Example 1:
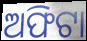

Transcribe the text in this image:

ଅଫିଟା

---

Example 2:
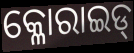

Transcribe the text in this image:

କ୍ଳୋରାଇଡ୍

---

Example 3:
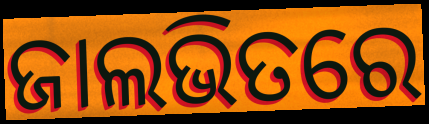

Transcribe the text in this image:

ଜାଲଭିତରେ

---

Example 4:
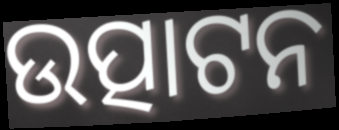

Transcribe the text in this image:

ଉତ୍ପାଟନ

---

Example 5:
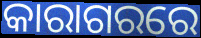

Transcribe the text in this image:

କାରାଗରରେ